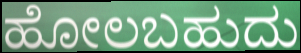
ಹೋಲಬಹುದು